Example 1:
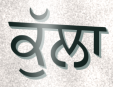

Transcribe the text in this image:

ਕੁੱਲਾ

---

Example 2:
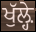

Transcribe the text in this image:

ਖੁੱਲ਼੍ਹੇ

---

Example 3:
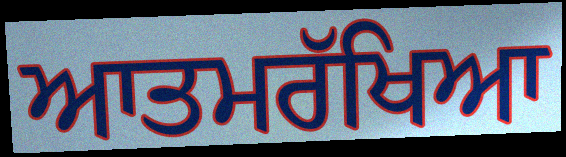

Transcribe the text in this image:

ਆਤਮਰੱਖਿਆ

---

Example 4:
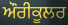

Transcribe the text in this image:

ਔਰੀਕੂਲਰ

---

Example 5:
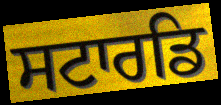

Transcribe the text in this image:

ਸਟਾਰਡਿ